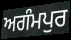
ਅਗੰਮਪੁਰ